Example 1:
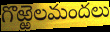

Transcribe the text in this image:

గొఱ్ఱెలమందలు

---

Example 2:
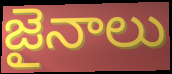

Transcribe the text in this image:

జైనాలు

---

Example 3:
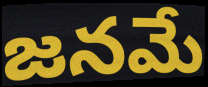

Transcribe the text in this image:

జనమే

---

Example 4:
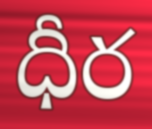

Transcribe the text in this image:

ధీర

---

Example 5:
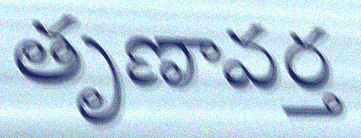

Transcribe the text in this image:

తృణావర్త